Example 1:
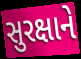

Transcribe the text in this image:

સુરક્ષાને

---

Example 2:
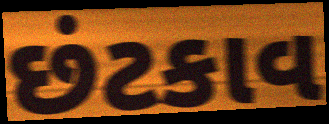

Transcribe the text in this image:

છંટકાવ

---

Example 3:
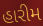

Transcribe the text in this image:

હારીમ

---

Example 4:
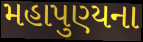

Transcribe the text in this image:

મહાપુણ્યના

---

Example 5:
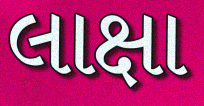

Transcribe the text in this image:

લાક્ષા